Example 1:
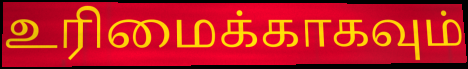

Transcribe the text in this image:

உரிமைக்காகவும்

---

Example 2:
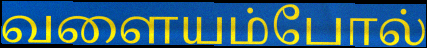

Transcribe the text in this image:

வளையம்போல்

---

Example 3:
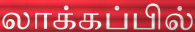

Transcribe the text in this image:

லாக்கப்பில்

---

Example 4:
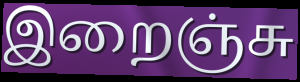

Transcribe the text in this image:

இறைஞ்சு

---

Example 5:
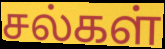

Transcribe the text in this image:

சல்கள்